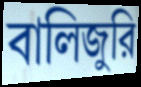
বালিজুরি